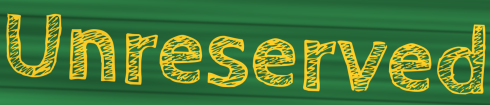
Unreserved